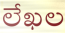
లేఖల